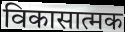
विकासात्मक